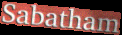
Sabatham